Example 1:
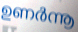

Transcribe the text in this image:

ഉണർന്നൂ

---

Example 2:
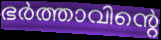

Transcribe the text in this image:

ഭർത്താവിന്റെ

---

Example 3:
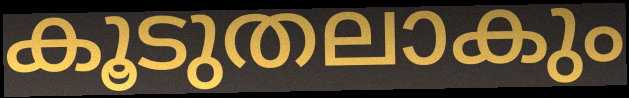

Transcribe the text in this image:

കൂടുതലാകും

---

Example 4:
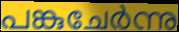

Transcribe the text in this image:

പങ്കുചേർന്നു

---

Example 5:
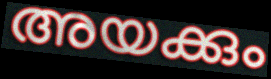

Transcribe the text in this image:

അയക്കും